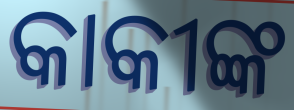
କାକୀଙ୍କ